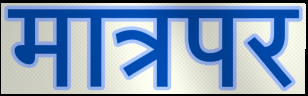
मात्रपर